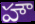
హౌ